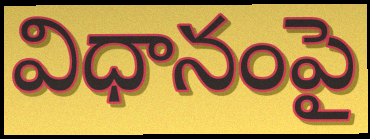
విధానంపై